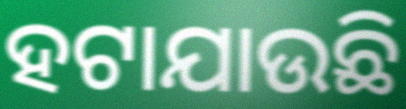
ହଟାଯାଉଛି